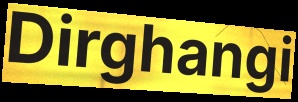
Dirghangi